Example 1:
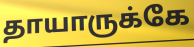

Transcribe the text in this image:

தாயாருக்கே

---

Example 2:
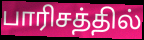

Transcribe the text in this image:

பாரிசத்தில்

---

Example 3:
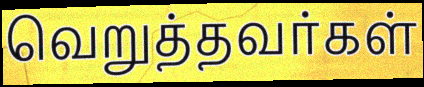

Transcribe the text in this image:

வெறுத்தவர்கள்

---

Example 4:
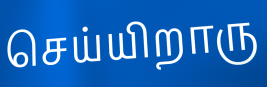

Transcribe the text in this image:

செய்யிறாரு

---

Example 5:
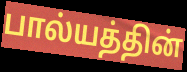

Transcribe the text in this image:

பால்யத்தின்